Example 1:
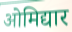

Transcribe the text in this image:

ओमिद्यार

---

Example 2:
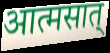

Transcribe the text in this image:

आत्मसात्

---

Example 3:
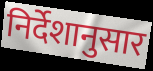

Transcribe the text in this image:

निर्देशानुसार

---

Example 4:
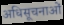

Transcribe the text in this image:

अधिसूचनाओं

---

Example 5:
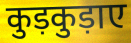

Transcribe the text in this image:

कुड़कुड़ाए